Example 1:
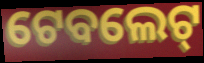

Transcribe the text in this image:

ଟେବଲେଟ୍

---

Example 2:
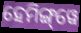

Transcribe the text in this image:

ହେମିଙ୍ଗ୍‌ୱେ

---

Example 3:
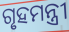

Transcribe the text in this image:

ଗୃହମନ୍ତ୍ରୀ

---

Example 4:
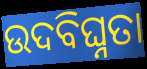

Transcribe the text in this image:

ଉଦବିଘ୍ନତା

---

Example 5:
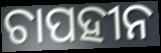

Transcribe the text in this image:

ଚାପହୀନ